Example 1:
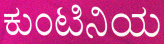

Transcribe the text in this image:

ಕುಂಟಿನಿಯ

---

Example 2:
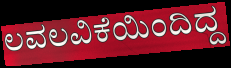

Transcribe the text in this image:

ಲವಲವಿಕೆಯಿಂದಿದ್ದ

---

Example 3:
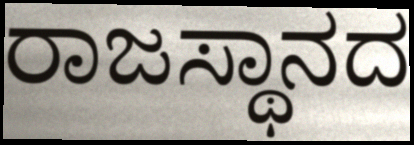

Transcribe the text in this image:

ರಾಜಸ್ಥಾನದ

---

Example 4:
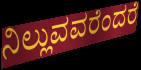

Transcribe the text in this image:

ನಿಲ್ಲುವವರೆಂದರೆ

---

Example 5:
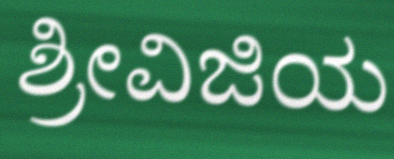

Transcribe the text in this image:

ಶ್ರೀವಿಜಿಯ